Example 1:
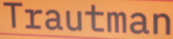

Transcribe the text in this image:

Trautman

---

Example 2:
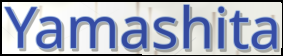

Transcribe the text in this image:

Yamashita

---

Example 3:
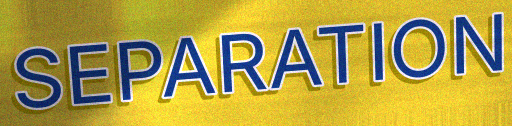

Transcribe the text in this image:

SEPARATION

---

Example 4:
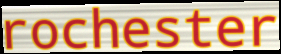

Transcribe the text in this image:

rochester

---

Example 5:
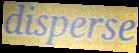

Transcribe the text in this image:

disperse